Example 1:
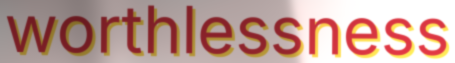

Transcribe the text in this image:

worthlessness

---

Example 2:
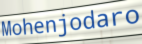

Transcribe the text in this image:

Mohenjodaro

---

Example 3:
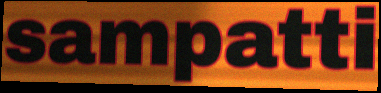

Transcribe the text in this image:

sampatti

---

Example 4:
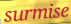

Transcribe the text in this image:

surmise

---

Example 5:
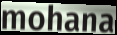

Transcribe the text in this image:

mohana